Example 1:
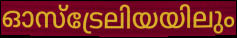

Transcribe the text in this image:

ഓസ്ട്രേലിയയിലും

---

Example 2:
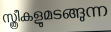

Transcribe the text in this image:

സ്ത്രീകളുമടങ്ങുന്ന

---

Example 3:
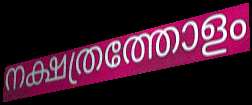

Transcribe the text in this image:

നക്ഷത്രത്തോളം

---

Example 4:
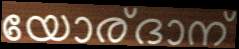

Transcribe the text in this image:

യോര്ദാന്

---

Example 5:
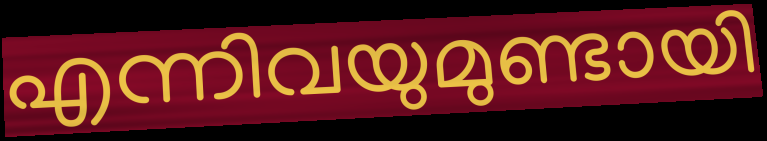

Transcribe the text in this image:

എന്നിവയുമുണ്ടായി